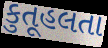
કુતૂહલતા